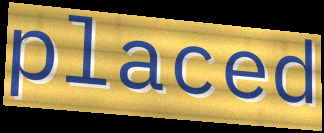
placed